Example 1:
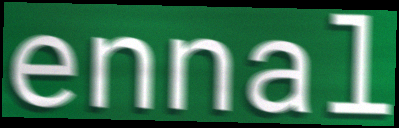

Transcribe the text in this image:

ennal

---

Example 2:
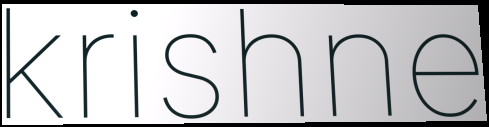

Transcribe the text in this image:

krishne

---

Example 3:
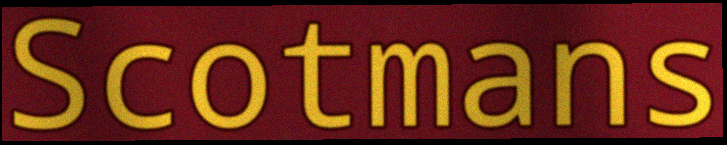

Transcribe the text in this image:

Scotmans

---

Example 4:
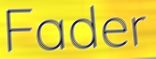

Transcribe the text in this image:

Fader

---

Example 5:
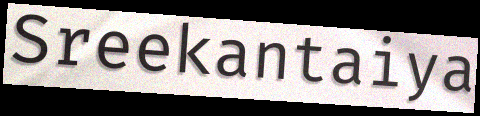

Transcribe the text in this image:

Sreekantaiya